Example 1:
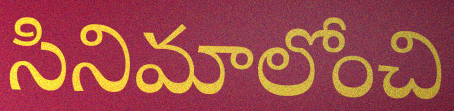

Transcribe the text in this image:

సినిమాలోంచి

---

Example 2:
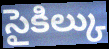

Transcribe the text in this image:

సైకిల్కు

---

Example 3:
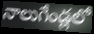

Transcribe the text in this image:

నాలుగేండ్లలో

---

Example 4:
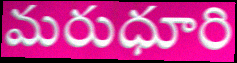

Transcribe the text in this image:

మరుధూరి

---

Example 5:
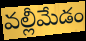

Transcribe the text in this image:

వల్లీమేడం